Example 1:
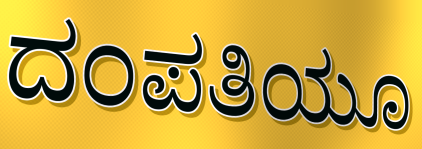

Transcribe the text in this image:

ದಂಪತಿಯೂ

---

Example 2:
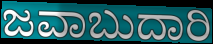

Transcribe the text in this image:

ಜವಾಬುದಾರಿ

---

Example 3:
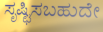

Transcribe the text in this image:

ಸೃಷ್ಟಿಸಬಹುದೇ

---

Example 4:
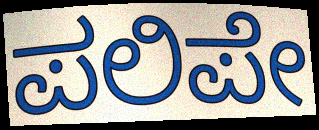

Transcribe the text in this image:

ಪಲಿಪೇ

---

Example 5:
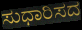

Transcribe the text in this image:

ಸುಧಾರಿಸದ